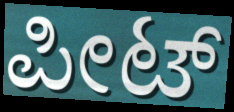
ಪೀಟ್